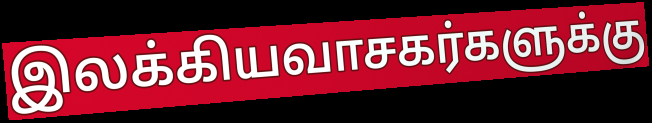
இலக்கியவாசகர்களுக்கு